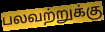
பலவற்றுக்கு